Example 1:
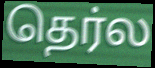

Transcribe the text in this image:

தெர்ல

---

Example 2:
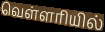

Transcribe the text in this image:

வெள்ளரியில்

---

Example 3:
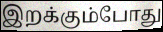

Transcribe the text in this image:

இறக்கும்போது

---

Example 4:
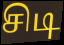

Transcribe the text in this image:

சிடி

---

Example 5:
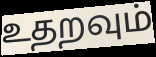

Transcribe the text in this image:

உதறவும்